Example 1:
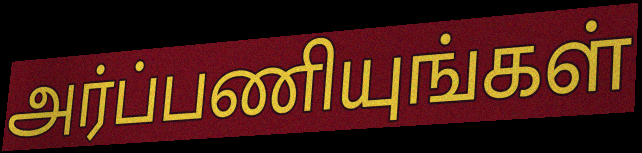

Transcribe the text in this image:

அர்ப்பணியுங்கள்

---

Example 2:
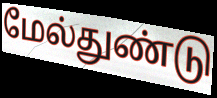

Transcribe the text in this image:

மேல்துண்டு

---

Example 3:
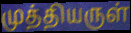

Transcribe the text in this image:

முத்தியருள்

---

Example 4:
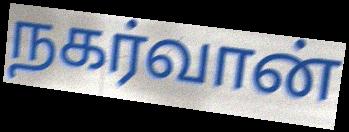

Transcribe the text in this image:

நகர்வான்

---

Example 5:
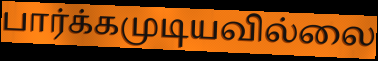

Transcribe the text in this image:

பார்க்கமுடியவில்லை